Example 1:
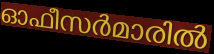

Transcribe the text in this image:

ഓഫീസർമാരിൽ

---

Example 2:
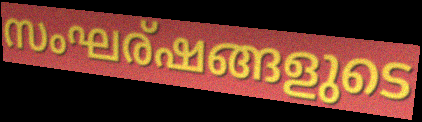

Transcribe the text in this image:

സംഘര്ഷങ്ങളുടെ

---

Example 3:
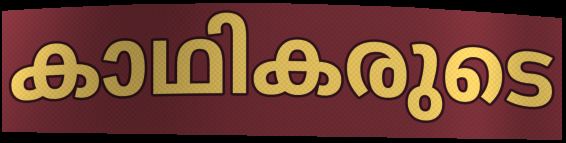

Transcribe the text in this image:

കാഥികരുടെ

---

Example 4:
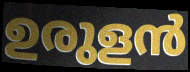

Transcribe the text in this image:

ഉരുളൻ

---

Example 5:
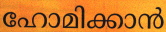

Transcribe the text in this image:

ഹോമിക്കാൻ